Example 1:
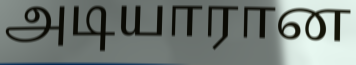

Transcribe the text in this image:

அடியாரான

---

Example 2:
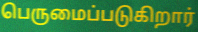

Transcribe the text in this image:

பெருமைப்படுகிறார்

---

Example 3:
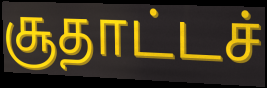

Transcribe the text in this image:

சூதாட்டச்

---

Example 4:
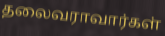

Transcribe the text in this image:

தலைவராவார்கள்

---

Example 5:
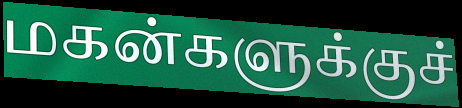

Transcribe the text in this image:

மகன்களுக்குச்